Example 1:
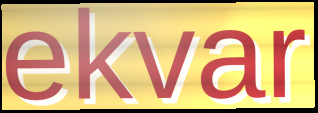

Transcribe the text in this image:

ekvar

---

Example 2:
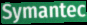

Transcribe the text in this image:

Symantec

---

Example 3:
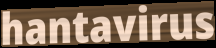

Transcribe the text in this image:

hantavirus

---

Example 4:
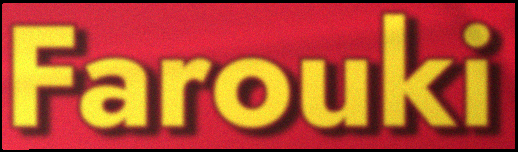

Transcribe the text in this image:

Farouki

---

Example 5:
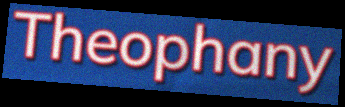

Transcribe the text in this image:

Theophany